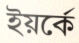
ইয়র্কে